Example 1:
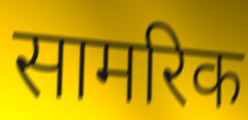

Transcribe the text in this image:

सामरिक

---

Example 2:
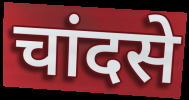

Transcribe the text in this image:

चांदसे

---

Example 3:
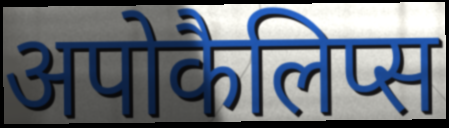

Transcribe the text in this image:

अपोकैलिप्स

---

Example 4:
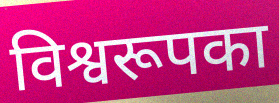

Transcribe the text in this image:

विश्वरूपका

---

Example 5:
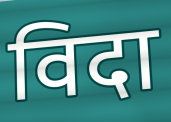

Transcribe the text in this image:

विदा